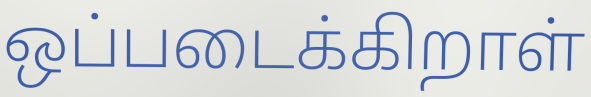
ஒப்படைக்கிறாள்